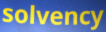
solvency